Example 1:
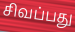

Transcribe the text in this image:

சிவப்பது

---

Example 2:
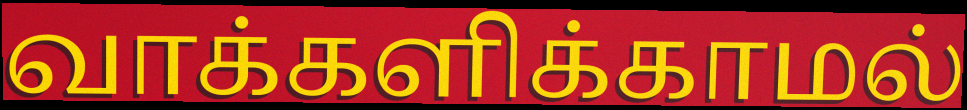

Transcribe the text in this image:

வாக்களிக்காமல்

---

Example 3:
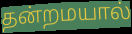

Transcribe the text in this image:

தன்றமயால்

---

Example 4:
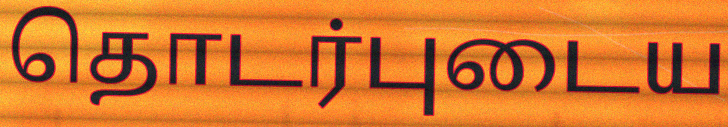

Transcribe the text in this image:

தொடர்புடைய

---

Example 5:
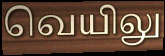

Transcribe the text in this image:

வெயிலு